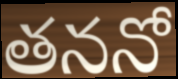
తననో